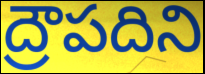
ద్రౌపదిని